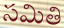
సమితి